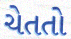
ચેતતો